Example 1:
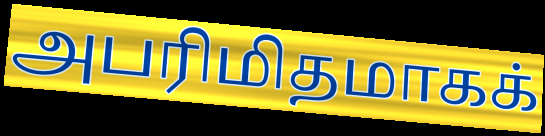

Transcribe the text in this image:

அபரிமிதமாகக்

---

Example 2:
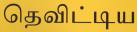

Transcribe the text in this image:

தெவிட்டிய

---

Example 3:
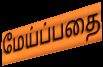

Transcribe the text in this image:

மேய்ப்பதை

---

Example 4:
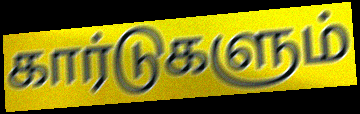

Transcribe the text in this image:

கார்டுகளும்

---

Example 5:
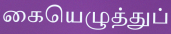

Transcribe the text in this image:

கையெழுத்துப்